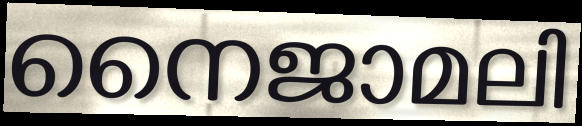
നൈജാമലി